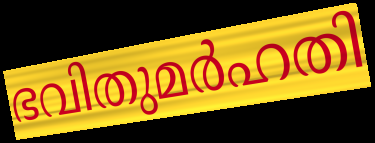
ഭവിതുമർഹതി